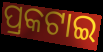
ପ୍ରକଟାଇ